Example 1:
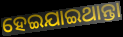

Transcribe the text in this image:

ହେଇଯାଇଥାନ୍ତା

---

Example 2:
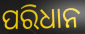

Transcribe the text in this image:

ପରିଧାନ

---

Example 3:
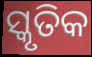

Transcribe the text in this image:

ସ୍କୃତିକ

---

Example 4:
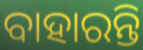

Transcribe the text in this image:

ବାହାରନ୍ତି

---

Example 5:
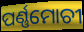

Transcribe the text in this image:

ପର୍ଣ୍ଣମୋଚୀ